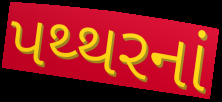
પથ્થરનાં